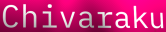
Chivaraku